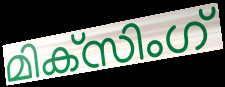
മിക്‌സിംഗ്